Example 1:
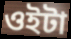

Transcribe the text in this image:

ওইটা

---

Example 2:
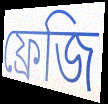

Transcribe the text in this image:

ফ্রেজি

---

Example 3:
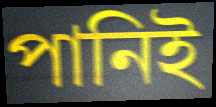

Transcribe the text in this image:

পানিই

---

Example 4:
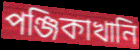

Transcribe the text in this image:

পঞ্জিকাখানি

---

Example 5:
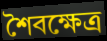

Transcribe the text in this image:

শৈবক্ষেত্র